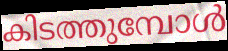
കിടത്തുമ്പോൾ